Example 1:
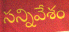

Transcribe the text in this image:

సన్నివేశం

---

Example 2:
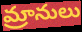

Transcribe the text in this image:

మ్రానులు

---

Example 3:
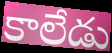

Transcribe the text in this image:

కాలేడు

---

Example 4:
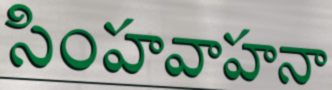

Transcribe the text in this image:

సింహవాహనా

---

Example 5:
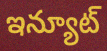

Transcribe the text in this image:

ఇన్యూట్